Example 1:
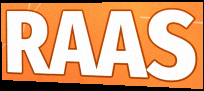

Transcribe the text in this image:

RAAS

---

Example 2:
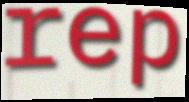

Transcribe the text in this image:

rep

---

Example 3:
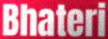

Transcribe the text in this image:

Bhateri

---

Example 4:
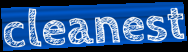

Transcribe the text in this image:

cleanest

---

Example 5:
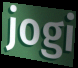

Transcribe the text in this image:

jogi